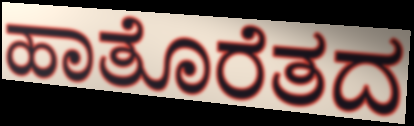
ಹಾತೊರೆತದ